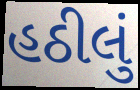
હઠીલું